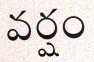
వర్షం